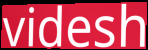
videsh